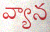
వ్యాన